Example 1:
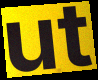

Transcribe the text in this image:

ut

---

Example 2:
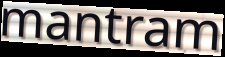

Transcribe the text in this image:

mantram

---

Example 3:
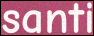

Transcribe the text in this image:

santi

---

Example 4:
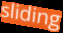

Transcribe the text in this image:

sliding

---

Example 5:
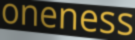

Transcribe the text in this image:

oneness